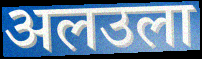
अलउला